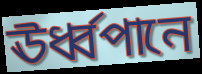
ঊর্ধ্বপানে